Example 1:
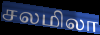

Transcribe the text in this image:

சலமிலா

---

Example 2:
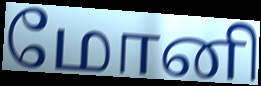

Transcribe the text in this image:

மோனி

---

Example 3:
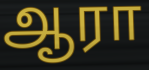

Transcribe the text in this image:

ஆரா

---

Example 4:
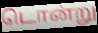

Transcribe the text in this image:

டொன்று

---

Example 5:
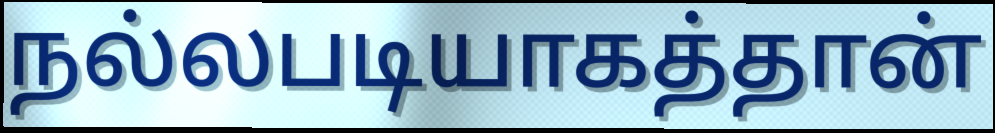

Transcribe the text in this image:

நல்லபடியாகத்தான்